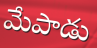
మేపాడు